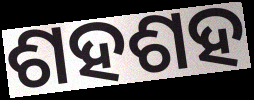
ଶହଶହ